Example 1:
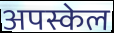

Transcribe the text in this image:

अपस्केल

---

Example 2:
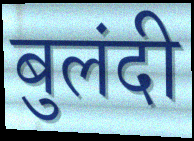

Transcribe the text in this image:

बुलंदी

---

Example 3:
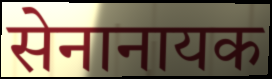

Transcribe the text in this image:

सेनानायक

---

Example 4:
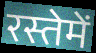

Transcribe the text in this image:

रस्तेमें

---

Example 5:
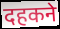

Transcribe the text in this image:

दहकने